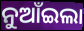
ନୁଆଁଇଲା